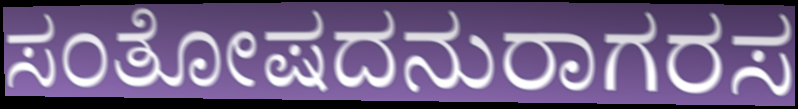
ಸಂತೋಷದನುರಾಗರಸ